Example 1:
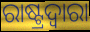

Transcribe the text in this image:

ରାଷ୍ଟ୍ରଦ୍ୱାରା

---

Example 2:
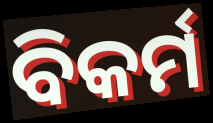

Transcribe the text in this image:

ବିକର୍ମ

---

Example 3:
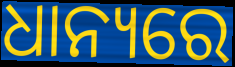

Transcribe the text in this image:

ଧାନ୍ୟରେ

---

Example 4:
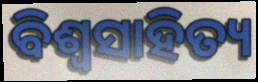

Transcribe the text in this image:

ବିଶ୍ଵସାହିତ୍ୟ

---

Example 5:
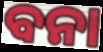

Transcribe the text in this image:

ବନା